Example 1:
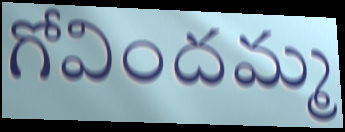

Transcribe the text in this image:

గోవిందమ్మ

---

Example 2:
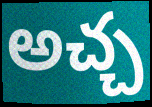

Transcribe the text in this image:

అచ్చ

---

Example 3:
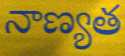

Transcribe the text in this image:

నాణ్యత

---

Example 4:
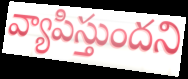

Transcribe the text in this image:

వ్యాపిస్తుందని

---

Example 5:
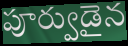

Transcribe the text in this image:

పూర్వుడైన